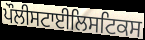
ਪੌਲੀਸਟਾਈਲਿਸਟਿਕਸ